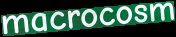
macrocosm